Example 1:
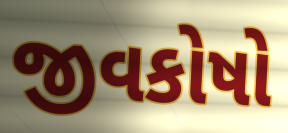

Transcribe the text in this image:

જીવકોષો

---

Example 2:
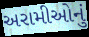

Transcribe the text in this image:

અરામીઓનું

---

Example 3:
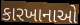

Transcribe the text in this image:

કારખાનાઓ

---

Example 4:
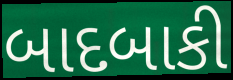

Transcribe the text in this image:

બાદબાકી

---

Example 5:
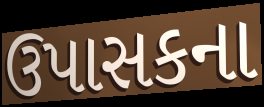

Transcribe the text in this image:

ઉપાસકના